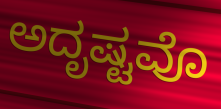
ಅದೃಷ್ಟವೊ